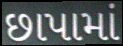
છાપામાં